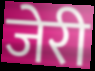
जेरी